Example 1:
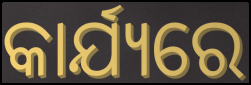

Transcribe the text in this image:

କାର୍ଯ୍ଯରେ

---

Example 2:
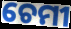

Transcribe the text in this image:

ଚେମୀ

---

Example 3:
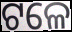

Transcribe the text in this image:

ଟଳେ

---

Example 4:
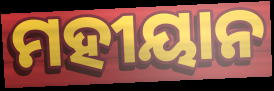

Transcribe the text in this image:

ମହୀୟାନ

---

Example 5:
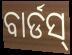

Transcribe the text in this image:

ବାର୍ଡସ୍